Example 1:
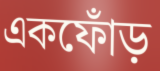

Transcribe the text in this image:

একফোঁড়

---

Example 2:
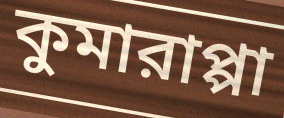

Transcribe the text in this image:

কুমারাপ্পা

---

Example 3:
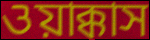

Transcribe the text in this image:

ওয়াক্কাস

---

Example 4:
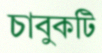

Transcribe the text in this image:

চাবুকটি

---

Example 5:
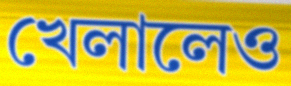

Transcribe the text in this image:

খেলালেও